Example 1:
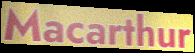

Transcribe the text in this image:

Macarthur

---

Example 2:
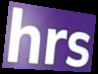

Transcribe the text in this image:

hrs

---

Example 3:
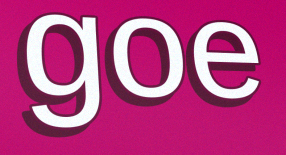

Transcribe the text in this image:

goe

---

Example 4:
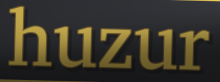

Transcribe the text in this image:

huzur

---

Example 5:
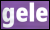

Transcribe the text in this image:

gele